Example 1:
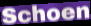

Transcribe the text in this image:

Schoen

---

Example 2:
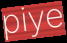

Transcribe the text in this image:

piye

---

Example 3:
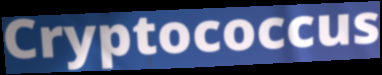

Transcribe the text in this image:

Cryptococcus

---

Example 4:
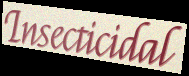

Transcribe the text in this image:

Insecticidal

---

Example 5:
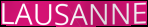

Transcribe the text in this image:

LAUSANNE